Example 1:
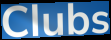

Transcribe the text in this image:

Clubs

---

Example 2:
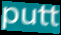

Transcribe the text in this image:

putt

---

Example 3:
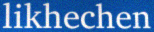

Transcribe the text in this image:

likhechen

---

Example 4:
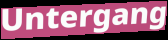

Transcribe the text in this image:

Untergang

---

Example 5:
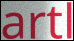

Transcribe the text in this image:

artl